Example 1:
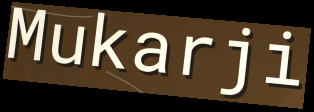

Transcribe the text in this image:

Mukarji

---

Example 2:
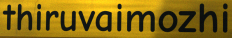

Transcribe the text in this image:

thiruvaimozhi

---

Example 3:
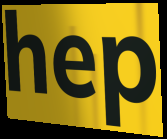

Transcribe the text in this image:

hep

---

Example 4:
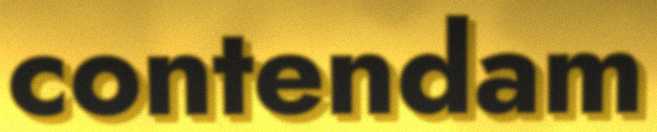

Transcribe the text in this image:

contendam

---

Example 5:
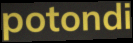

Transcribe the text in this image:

potondi